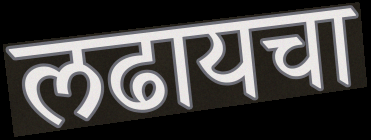
लढायचा